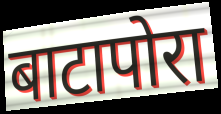
बाटापोरा